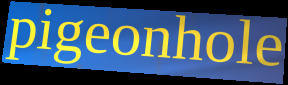
pigeonhole